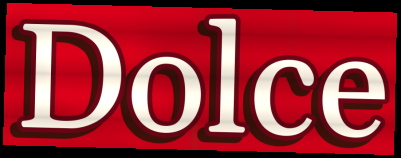
Dolce